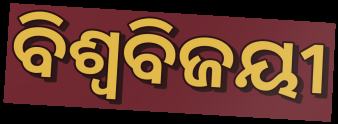
ବିଶ୍ଵବିଜୟୀ